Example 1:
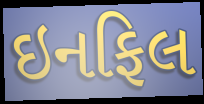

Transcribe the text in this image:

ઇનફિલ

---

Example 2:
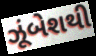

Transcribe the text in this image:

ઝૂંબેશથી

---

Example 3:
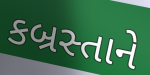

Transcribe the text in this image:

કબ્રસ્તાને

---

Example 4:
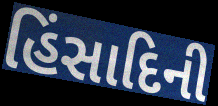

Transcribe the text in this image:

હિંસાદિની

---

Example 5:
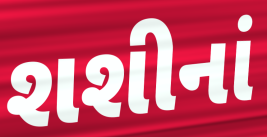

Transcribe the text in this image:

શશીનાં